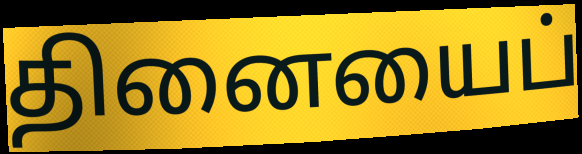
தினையைப்